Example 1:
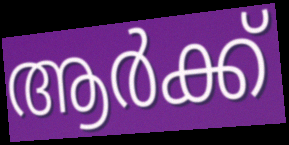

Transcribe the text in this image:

ആർക്ക്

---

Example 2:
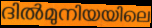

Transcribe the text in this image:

ദിൽമുനിയയിലെ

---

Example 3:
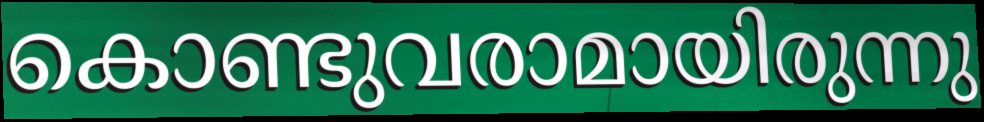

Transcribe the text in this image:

കൊണ്ടുവരാമായിരുന്നു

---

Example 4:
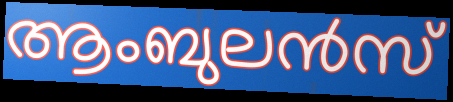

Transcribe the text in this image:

ആംബുലൻസ്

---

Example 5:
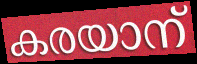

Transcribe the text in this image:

കരയാന്